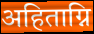
अहिताग्नि